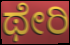
ಥೇರಿ